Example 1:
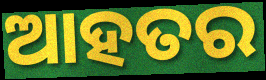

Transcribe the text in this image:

ଆହତର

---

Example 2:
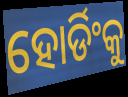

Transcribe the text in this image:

ହୋର୍ଡିଂକୁ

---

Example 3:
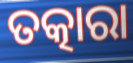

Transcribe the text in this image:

ତତ୍କାରା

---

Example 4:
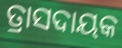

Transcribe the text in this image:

ତ୍ରାସଦାୟକ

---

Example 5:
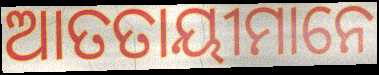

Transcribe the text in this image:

ଆତତାୟୀମାନେ